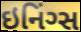
ઇનિંગ્સ